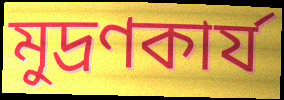
মুদ্রণকার্য